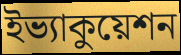
ইভ্যাকুয়েশন